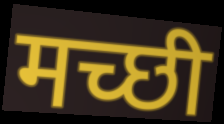
मच्छी